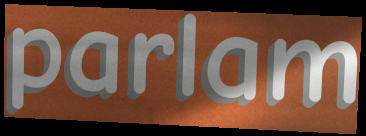
parlam